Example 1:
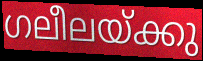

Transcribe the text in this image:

ഗലീലയ്ക്കു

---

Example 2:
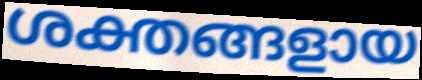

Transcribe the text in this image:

ശക്തങ്ങളായ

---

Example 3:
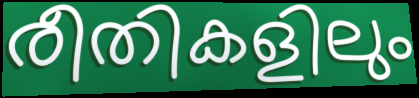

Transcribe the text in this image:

രീതികളിലും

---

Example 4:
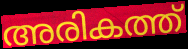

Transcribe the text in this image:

അരികത്ത്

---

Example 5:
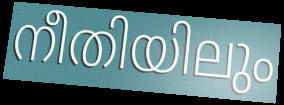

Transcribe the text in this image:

നീതിയിലും